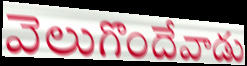
వెలుగొందేవాడు